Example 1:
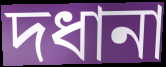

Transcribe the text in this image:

দধানা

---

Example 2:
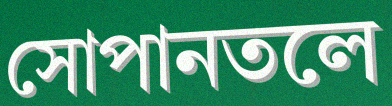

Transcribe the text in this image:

সোপানতলে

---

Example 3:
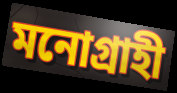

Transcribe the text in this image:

মনোগ্রাহী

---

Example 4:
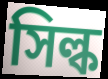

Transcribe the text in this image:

সিল্ক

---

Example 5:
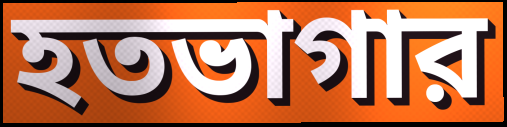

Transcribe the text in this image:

হতভাগার